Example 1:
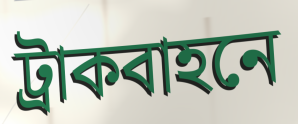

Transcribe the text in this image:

ট্রাকবাহনে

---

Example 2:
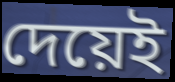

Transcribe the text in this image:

দেয়েই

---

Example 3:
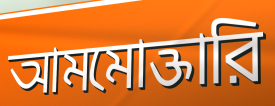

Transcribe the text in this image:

আমমোক্তারি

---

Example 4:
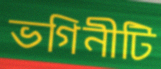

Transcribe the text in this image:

ভগিনীটি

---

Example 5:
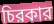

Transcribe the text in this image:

চিরকার